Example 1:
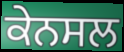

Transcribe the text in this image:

ਕੇਨਸਲ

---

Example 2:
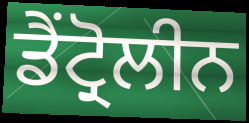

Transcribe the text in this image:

ਡੈਂਟ੍ਰੋਲੀਨ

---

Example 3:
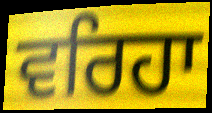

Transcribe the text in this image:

ਵਰਿਹਾ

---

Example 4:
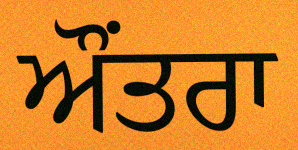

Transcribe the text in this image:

ਔਂਤਰਾ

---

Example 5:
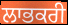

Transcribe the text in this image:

ਲਾਭਕਰੀ